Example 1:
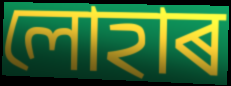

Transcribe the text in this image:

লোহাৰ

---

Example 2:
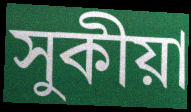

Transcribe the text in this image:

সুকীয়া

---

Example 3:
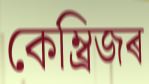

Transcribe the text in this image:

কেম্ব্ৰিজৰ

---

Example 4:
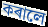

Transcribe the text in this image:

কৰালে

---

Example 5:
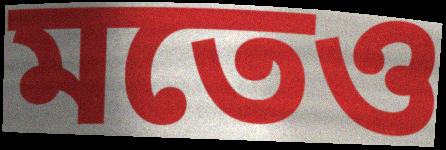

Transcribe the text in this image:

মতেও